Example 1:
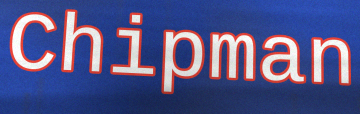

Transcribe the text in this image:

Chipman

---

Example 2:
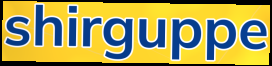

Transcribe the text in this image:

shirguppe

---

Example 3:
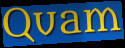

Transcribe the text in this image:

Quam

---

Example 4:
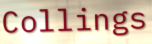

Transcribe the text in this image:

Collings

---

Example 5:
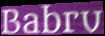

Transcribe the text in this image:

Babru